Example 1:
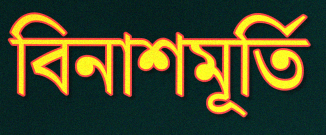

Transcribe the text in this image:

বিনাশমূর্তি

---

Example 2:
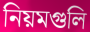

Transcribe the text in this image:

নিয়মগুলি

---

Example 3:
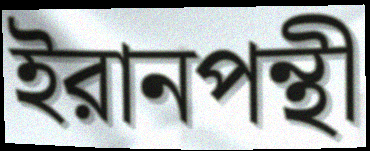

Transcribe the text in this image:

ইরানপন্থী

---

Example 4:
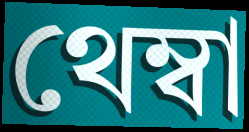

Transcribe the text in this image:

থেম্বা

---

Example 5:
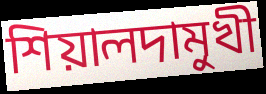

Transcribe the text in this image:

শিয়ালদামুখী